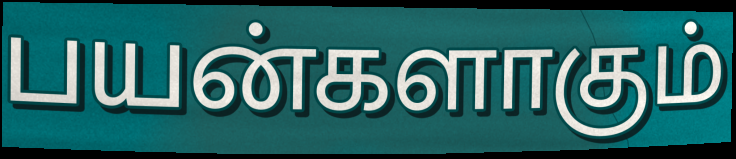
பயன்களாகும்